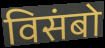
विसंबो